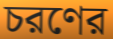
চরণের